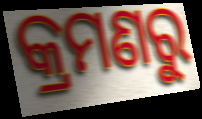
କ୍ରମଣରୁ